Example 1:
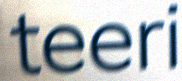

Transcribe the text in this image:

teeri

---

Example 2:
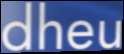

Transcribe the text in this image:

dheu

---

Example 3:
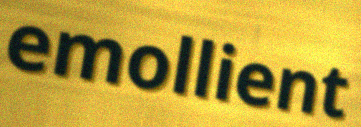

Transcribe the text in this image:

emollient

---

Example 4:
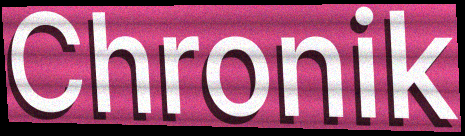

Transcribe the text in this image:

Chronik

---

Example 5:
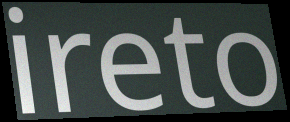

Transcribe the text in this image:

ireto